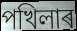
পখিলাৰ